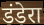
डंडेरा